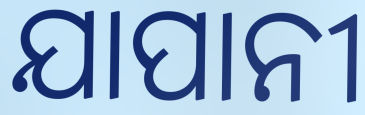
ଯାପାନୀ